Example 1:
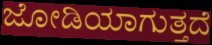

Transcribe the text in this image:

ಜೋಡಿಯಾಗುತ್ತದೆ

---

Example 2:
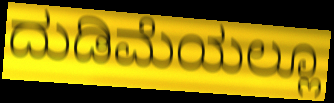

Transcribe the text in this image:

ದುಡಿಮೆಯಲ್ಲೂ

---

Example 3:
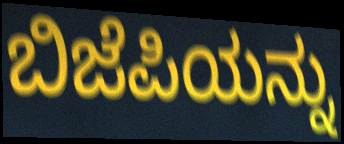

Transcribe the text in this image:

ಬಿಜೆಪಿಯನ್ನು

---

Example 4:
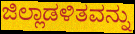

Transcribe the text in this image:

ಜಿಲ್ಲಾಡಳಿತವನ್ನು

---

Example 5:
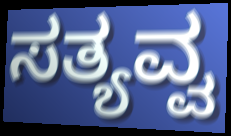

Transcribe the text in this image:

ಸತ್ಯವ್ವ